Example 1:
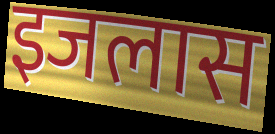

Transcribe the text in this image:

इजलास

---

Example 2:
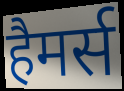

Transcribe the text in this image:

हैमर्स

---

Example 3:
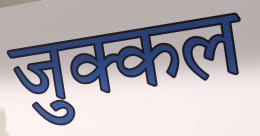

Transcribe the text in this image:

जुक्कल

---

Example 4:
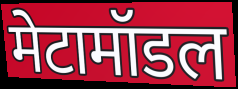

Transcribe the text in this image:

मेटामॉडल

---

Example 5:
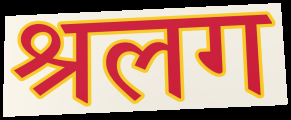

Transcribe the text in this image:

श्रलग